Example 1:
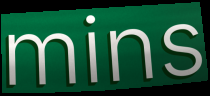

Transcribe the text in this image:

mins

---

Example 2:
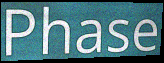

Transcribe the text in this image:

Phase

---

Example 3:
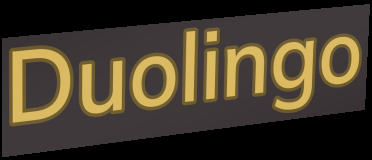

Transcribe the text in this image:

Duolingo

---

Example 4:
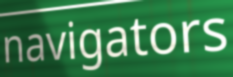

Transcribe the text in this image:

navigators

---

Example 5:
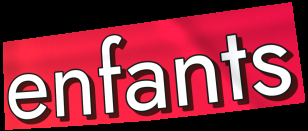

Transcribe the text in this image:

enfants